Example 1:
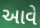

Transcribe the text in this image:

આવે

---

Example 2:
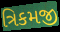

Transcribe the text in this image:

ત્રિકમજી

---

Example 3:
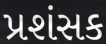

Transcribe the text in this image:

પ્રશંસક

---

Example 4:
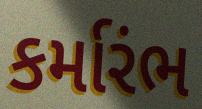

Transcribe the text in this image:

કર્મારંભ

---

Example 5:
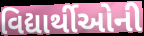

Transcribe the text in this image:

વિદ્યાર્થીઓની